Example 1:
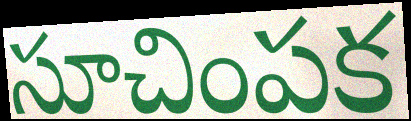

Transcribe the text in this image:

సూచింపక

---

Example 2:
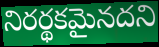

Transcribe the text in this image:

నిరర్థకమైనదని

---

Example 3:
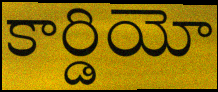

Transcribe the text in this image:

కార్డియో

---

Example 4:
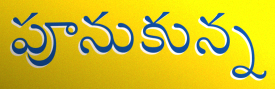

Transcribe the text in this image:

పూనుకున్న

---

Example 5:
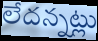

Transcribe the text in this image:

లేదన్నట్లు